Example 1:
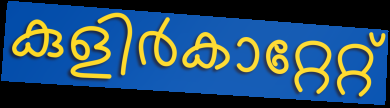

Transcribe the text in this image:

കുളിർകാറ്റേറ്റ്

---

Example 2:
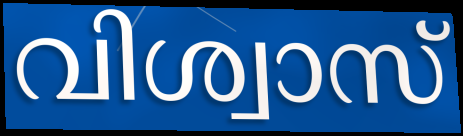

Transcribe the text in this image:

വിശ്വാസ്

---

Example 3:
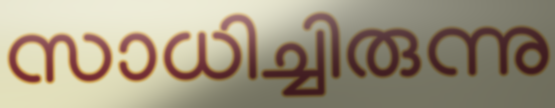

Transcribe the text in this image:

സാധിച്ചിരുന്നു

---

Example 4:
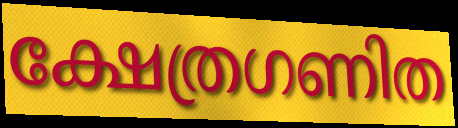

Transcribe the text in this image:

ക്ഷേത്രഗണിത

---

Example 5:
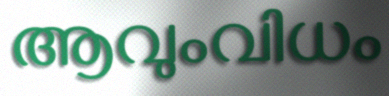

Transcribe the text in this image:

ആവുംവിധം